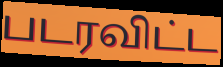
படரவிட்ட